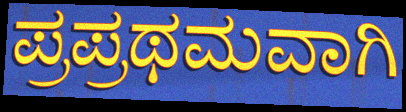
ಪ್ರಪ್ರಥಮವಾಗಿ